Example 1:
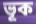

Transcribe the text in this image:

ভূক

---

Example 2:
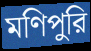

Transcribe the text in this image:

মণিপুরি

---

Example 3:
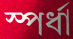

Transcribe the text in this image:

স্পর্ধা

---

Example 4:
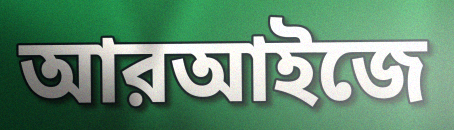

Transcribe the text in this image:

আরআইজে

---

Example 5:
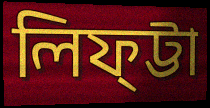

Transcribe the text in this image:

লিফ্ট্টা